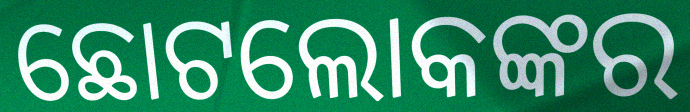
ଛୋଟଲୋକଙ୍କର